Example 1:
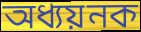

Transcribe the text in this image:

অধ্যয়নক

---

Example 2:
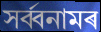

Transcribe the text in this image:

সৰ্ব্বনামৰ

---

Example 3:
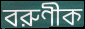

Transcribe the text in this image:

বৰুণীক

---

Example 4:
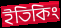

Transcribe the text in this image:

ইতিকিং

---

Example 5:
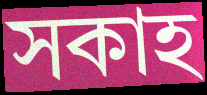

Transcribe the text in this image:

সকাহ